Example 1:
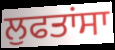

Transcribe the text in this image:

ਲੁਫਤਾਂਸਾ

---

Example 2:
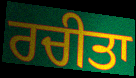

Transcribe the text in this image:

ਰਚੀਤਾ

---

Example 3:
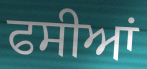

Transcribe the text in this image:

ਫਸੀਆਂ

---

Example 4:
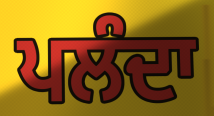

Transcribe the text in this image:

ਪਲੰਦਾ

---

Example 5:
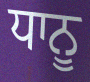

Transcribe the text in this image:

ਧਾਨੂ